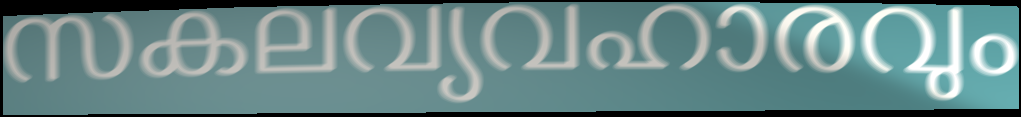
സകലവ്യവഹാരവും